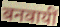
बनवायीं